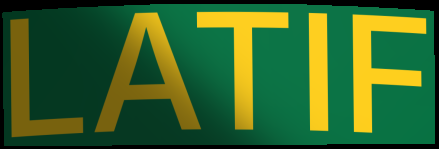
LATIF